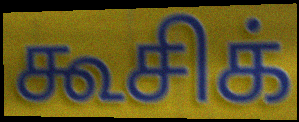
கூசிக்